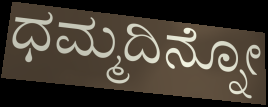
ಧಮ್ಮದಿನ್ನೋ